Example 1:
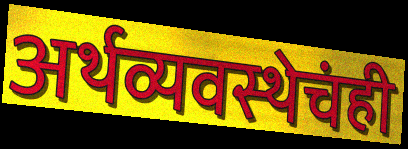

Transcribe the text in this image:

अर्थव्यवस्थेचंही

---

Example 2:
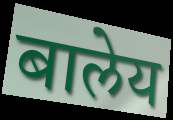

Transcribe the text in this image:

बालेय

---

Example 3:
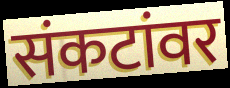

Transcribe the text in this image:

संकटांवर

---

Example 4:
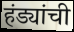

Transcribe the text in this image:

हंड्यांची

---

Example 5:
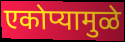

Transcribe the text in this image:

एकोप्यामुळे